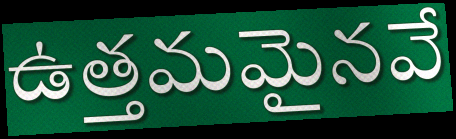
ఉత్తమమైనవే